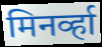
मिनर्व्हा